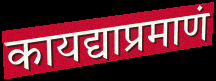
कायद्याप्रमाणं